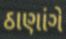
ઠાણાંગે